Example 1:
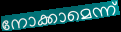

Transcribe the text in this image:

നോക്കാമെന്ന്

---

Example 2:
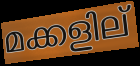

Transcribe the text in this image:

മക്കളില്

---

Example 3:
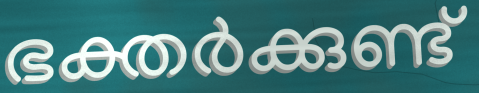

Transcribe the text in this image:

ഭക്തർക്കുണ്ട്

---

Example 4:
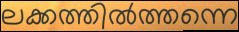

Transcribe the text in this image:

ലക്കത്തിൽത്തന്നെ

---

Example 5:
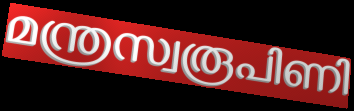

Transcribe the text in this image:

മന്ത്രസ്വരൂപിണി